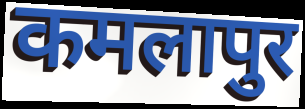
कमलापुर